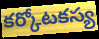
కర్కోటకస్య